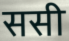
ससी